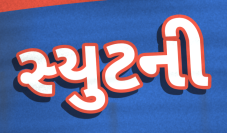
સ્યુટની